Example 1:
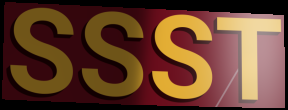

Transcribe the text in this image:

SSST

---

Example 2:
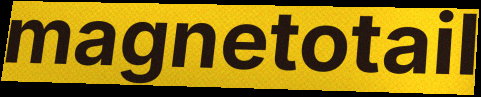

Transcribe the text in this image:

magnetotail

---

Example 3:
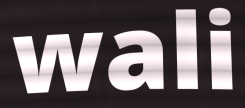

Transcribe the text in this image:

wali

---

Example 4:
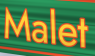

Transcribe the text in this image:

Malet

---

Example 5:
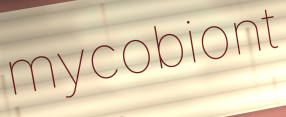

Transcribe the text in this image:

mycobiont